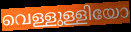
വെള്ളുള്ളിയോ